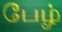
பேழ்